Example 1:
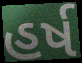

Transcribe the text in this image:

હર્ષ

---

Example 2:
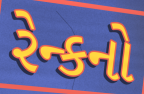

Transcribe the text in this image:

રેન્કનો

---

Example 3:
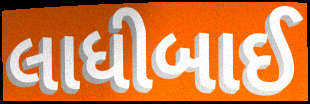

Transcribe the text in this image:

લાધીબાઈ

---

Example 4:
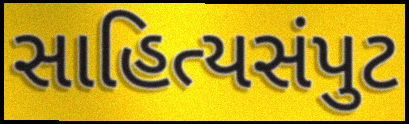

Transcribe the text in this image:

સાહિત્યસંપુટ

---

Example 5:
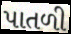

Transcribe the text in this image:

પાતળી